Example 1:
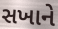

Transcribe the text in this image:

સખાને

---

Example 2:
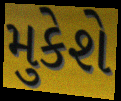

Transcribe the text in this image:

મુકેશે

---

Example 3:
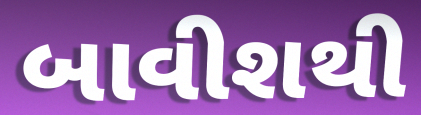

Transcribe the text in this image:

બાવીશથી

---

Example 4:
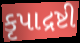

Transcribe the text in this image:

કૃપાદ્રષ્ટી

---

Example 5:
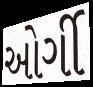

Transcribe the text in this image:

ઓર્ગી